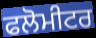
ਫਲੋਮੀਟਰ